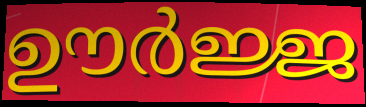
ഊർജ്ജ